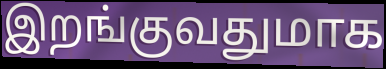
இறங்குவதுமாக